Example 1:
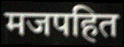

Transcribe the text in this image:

मजपहित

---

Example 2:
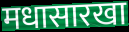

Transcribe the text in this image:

मधासारखा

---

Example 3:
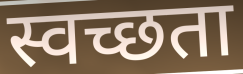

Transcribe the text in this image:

स्वच्छता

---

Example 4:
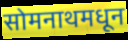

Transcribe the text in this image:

सोमनाथमधून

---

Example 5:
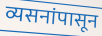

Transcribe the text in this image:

व्यसनांपासून